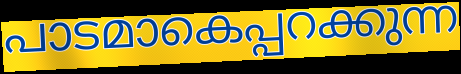
പാടമാകെപ്പറക്കുന്ന